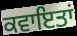
ਕਵਾਇਤਾਂ